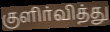
குளிர்வித்து